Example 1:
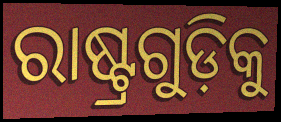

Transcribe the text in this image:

ରାଷ୍ଟ୍ରଗୁଡ଼ିକୁ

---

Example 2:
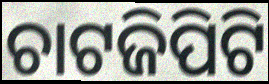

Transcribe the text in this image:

ଚାଟଜିପିଟି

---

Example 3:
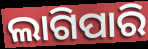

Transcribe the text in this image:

ଲାଗିପାରି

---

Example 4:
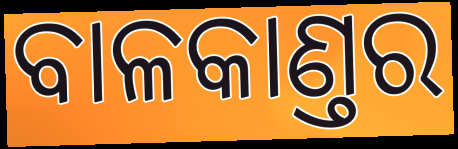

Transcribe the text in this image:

ବାଳକାଣ୍ତର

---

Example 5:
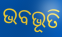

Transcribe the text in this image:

ଭବଭୂତି